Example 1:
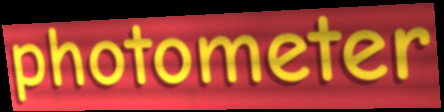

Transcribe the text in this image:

photometer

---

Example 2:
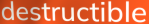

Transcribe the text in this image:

destructible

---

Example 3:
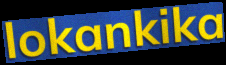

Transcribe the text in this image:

lokankika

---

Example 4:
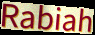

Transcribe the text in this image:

Rabiah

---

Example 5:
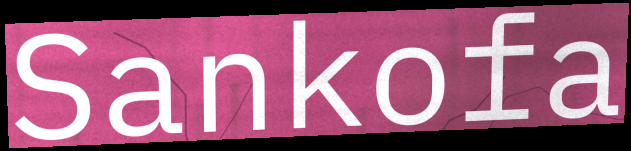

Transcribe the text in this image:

Sankofa